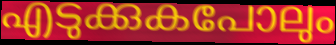
എടുക്കുകപോലും